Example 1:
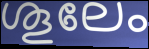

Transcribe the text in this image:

ശൂലേം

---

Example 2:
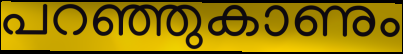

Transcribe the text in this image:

പറഞ്ഞുകാണും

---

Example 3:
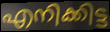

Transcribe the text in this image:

എനിക്കിട്ട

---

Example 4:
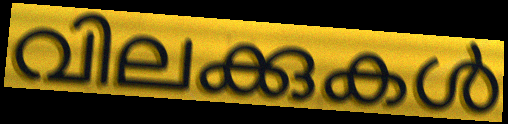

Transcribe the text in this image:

വിലക്കുകൾ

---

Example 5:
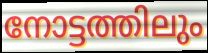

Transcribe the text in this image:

നോട്ടത്തിലും